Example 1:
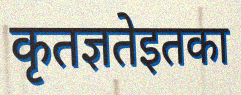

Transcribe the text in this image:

कृतज्ञतेइतका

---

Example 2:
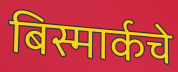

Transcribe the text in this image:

बिस्मार्कचे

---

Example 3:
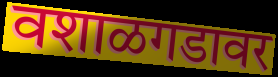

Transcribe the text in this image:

वशाळगडावर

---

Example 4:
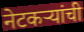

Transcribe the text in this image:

नेटकऱ्यांची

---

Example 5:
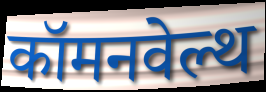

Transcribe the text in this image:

कॉमनवेल्थ